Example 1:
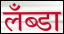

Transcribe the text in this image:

लँब्डा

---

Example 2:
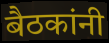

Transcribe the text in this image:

बैठकांनी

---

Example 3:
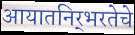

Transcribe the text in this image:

आयातनिर्भरतेचे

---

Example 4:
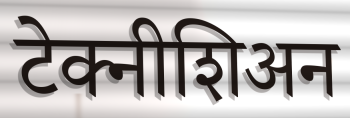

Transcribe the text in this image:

टेक्नीशिअन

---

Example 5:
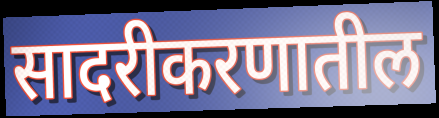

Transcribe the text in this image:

सादरीकरणातील